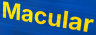
Macular